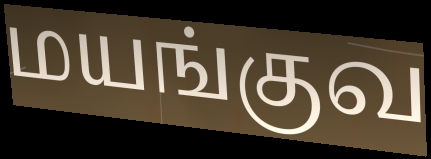
மயங்குவ